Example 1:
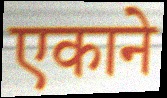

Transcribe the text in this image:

एकाने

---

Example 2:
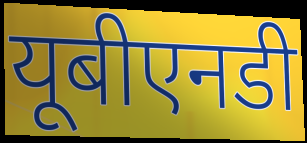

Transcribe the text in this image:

यूबीएनडी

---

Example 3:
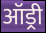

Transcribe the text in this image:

ऑड्री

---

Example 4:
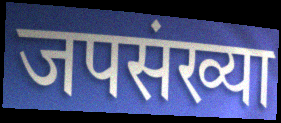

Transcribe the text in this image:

जपसंख्या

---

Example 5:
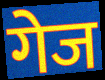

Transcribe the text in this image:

गेज